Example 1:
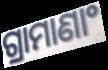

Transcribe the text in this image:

ଗ୍ରାମାଣାଂ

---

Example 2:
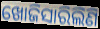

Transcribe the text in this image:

ଖୋଜିସାରିଲିଣି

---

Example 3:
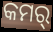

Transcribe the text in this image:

କମର୍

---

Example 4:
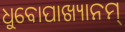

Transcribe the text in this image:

ଧୁବୋପାଖ୍ୟାନମ୍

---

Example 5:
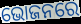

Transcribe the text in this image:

ଭୋଜନରେ